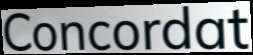
Concordat